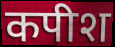
कपीश